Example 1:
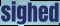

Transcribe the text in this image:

sighed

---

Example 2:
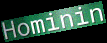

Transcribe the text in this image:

Hominin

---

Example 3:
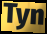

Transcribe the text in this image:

Tyn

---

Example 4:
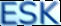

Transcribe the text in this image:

ESK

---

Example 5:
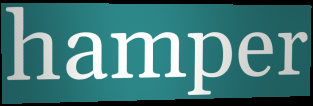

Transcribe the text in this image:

hamper